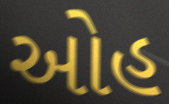
ઓહ